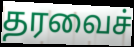
தரவைச்